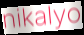
nikalyo